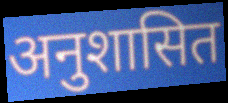
अनुशासित